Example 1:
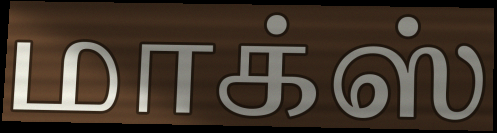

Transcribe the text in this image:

மாக்ஸ்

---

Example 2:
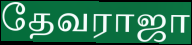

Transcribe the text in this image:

தேவராஜா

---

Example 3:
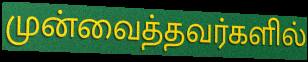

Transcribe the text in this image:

முன்வைத்தவர்களில்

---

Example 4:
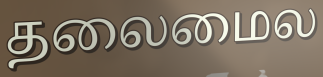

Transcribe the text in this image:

தலைமைல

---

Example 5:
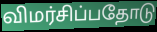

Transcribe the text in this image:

விமர்சிப்பதோடு